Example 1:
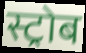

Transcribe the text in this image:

स्ट्रोब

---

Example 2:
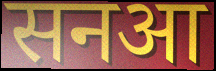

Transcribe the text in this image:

सनआ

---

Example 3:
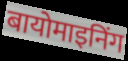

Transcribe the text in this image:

बायोमाइनिंग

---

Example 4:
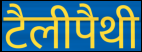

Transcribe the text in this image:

टैलीपैथी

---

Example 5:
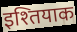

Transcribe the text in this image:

इश्तियाक